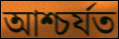
আশ্চৰ্যত